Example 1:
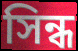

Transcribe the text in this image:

সিন্ধ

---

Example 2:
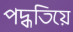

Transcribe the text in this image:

পদ্ধতিয়ে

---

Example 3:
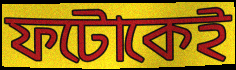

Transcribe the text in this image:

ফটোকেই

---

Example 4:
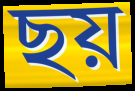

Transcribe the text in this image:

ছয়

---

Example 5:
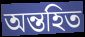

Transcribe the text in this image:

অন্তহিত